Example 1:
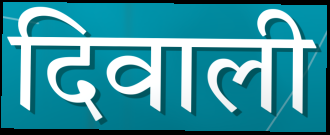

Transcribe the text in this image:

दिवाली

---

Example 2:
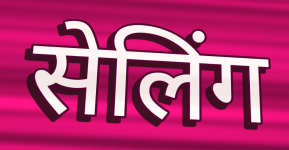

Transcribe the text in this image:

सेलिंग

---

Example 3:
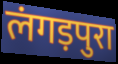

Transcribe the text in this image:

लंगड़पुरा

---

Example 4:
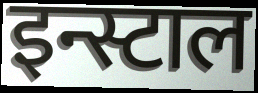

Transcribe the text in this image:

इन्स्टाल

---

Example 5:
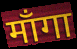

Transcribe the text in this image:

माँगा